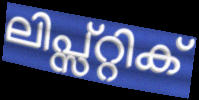
ലിപ്സ്റ്റിക്